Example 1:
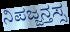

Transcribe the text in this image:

ನಿಪಜ್ಜನ್ತಸ್ಸ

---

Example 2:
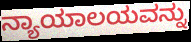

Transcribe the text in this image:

ನ್ಯಾಯಾಲಯವನ್ನು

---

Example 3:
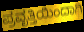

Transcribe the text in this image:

ಪ್ರವೃತ್ತಿಯಿಂದಾಗಿ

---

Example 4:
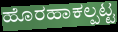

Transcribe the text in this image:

ಹೊರಹಾಕಲ್ಪಟ್ಟ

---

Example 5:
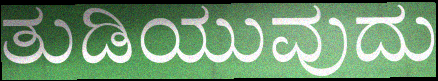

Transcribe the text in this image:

ತುಡಿಯುವುದು